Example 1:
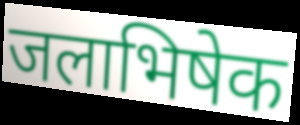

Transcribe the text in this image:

जलाभिषेक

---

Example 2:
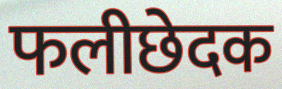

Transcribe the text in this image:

फलीछेदक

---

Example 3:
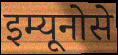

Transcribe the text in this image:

इम्यूनोसे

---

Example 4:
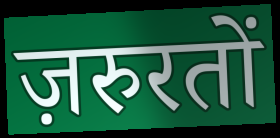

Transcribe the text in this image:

ज़रुरतों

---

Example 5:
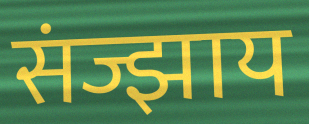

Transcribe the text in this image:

संज्झाय